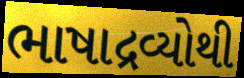
ભાષાદ્રવ્યોથી